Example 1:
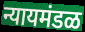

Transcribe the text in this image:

न्यायमंडळ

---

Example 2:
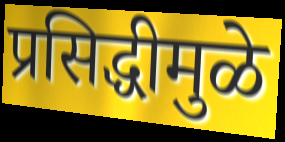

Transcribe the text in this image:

प्रसिद्धीमुळे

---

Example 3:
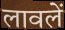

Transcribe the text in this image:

लावलें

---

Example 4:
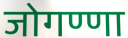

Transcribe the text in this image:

जोगण्णा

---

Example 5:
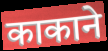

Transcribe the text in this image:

काकाने